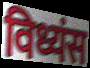
विध्यंस